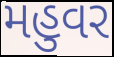
મહુવર